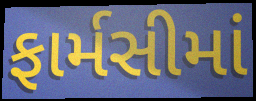
ફાર્મસીમાં